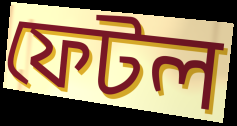
ফেটল